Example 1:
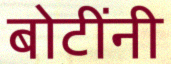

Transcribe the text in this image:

बोटींनी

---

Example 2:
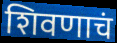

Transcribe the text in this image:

शिवणाचं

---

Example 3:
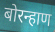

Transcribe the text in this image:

बोरन्हाण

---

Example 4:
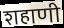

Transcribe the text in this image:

शहाणी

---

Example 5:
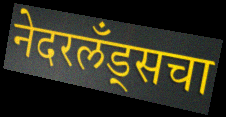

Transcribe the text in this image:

नेदरलँड्सचा